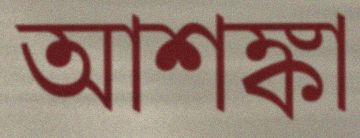
আশঙ্কা